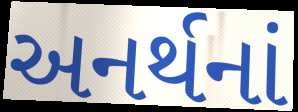
અનર્થનાં